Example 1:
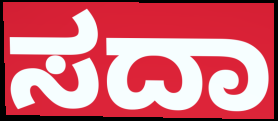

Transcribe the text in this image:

ಸದಾ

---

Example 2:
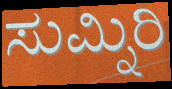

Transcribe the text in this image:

ಸುಮ್ನಿರಿ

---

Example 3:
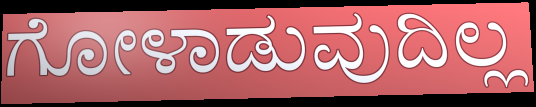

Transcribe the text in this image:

ಗೋಳಾಡುವುದಿಲ್ಲ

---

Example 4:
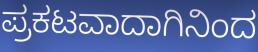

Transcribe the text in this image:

ಪ್ರಕಟವಾದಾಗಿನಿಂದ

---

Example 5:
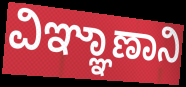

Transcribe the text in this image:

ವಿಞ್ಞಾಣಾನಿ